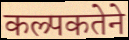
कल्पकतेने